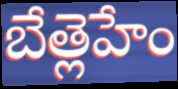
బేత్లెహేం